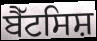
ਬੈੱਟਸਿਸ਼